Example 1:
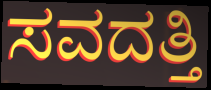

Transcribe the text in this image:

ಸವದತ್ತಿ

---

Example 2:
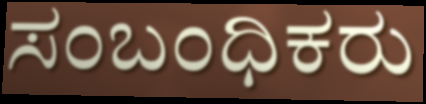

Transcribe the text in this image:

ಸಂಬಂಧಿಕರು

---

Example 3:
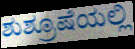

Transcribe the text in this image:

ಶುಶ್ರೂಷೆಯಲ್ಲಿ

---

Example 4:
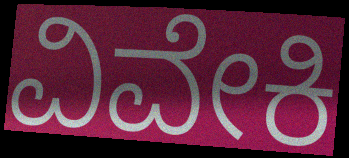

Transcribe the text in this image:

ವಿವೇಕಿ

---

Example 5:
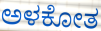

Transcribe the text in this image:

ಅಳಕೋತ